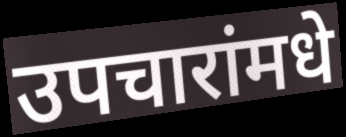
उपचारांमधे